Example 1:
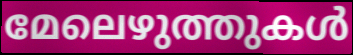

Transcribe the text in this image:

മേലെഴുത്തുകൾ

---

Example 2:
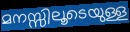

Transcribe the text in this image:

മനസ്സിലൂടെയുള്ള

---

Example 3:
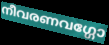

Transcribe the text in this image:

നീവരണവഗ്ഗോ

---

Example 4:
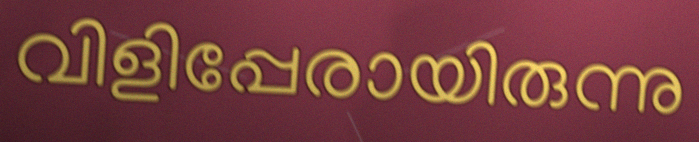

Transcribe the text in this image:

വിളിപ്പേരായിരുന്നു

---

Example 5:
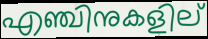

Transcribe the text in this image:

എഞ്ചിനുകളില്